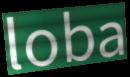
loba